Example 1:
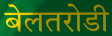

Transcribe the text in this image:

बेलतरोडी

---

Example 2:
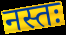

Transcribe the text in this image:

नस्तः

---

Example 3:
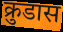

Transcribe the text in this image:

क्रुडास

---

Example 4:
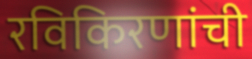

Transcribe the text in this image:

रविकिरणांची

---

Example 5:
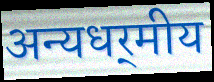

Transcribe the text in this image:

अन्यधर्मीय